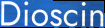
Dioscin